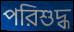
পরিশুদ্ধ